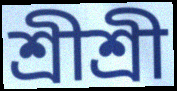
শ্রীশ্রী